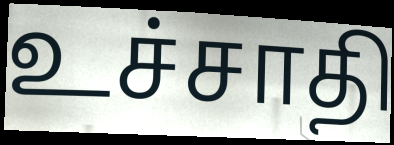
உச்சாதி